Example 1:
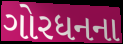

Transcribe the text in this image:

ગોરધનના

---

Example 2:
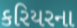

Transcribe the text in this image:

કરિયરના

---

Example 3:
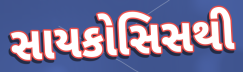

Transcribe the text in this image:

સાયકોસિસથી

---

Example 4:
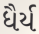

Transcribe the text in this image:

ધૈર્ય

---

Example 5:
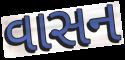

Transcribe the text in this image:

વાસન